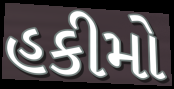
હકીમો